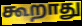
கூறாது